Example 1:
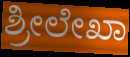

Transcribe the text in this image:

ಶ್ರೀಲೇಖಾ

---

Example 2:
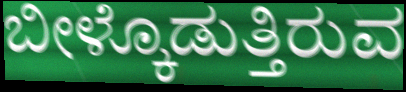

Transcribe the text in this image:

ಬೀಳ್ಕೊಡುತ್ತಿರುವ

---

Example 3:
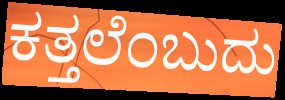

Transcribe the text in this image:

ಕತ್ತಲೆಂಬುದು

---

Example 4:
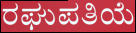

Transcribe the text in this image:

ರಘುಪತಿಯೆ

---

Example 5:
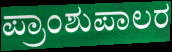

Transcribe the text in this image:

ಪ್ರಾಂಶುಪಾಲರ